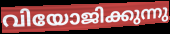
വിയോജിക്കുന്നു